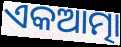
ଏକଆତ୍ମା